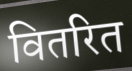
वितरित